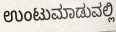
ಉಂಟುಮಾಡುವಲ್ಲಿ